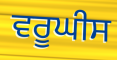
ਵਰੂਘੀਸ